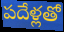
పదేళ్లతో